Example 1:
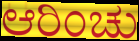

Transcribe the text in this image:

ಆರಿಂಚು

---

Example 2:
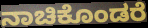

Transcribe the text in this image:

ನಾಚಿಕೊಂಡರೆ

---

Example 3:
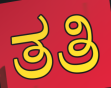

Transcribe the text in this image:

ತತಿ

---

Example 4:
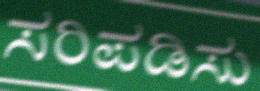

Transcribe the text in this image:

ಸರಿಪಡಿಸು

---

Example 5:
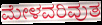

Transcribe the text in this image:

ಮೇಳವರಿವುತ